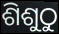
ଶିଶୁଠୁ